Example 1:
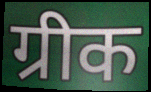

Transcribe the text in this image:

ग्रीक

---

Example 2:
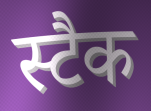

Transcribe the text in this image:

स्टैक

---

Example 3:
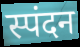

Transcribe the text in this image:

स्पंदन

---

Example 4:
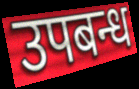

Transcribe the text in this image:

उपबन्ध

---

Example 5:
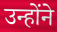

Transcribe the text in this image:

उन्होंने